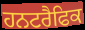
ਹਨਟਰੈਫਿਕ